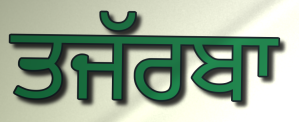
ਤਜੱਰਬਾ